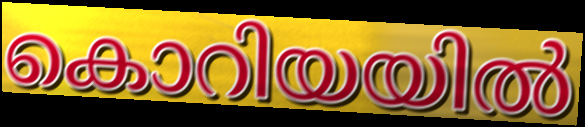
കൊറിയയിൽ